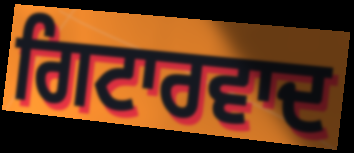
ਗਿਟਾਰਵਾਦ